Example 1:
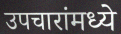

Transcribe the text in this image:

उपचारांमध्ये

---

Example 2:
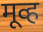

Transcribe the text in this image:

मूव्ह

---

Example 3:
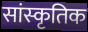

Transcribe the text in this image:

सांस्‍कृतिक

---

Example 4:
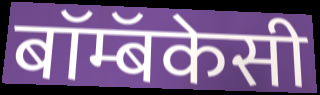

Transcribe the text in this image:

बॉम्बॅकेसी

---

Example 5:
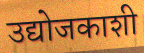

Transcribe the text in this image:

उद्योजकाशी